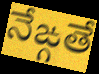
నేఙ్గతే